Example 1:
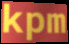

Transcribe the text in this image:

kpm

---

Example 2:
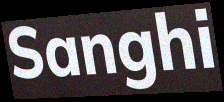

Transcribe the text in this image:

Sanghi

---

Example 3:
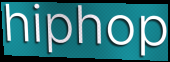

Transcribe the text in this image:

hiphop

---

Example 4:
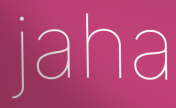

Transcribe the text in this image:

jaha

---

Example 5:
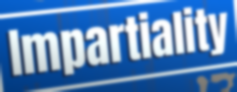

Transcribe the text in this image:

Impartiality